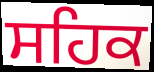
ਸਹਿਕ